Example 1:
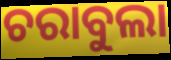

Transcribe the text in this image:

ଚରାବୁଲା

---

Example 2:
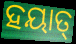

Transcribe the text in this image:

ହୟାତ୍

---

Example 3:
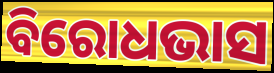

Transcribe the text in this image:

ବିରୋଧଭାସ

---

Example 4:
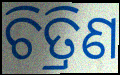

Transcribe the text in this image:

ଚିତ୍ରିଣ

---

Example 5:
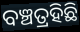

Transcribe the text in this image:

ବଞ୍ଚତ୍ରହିଛି